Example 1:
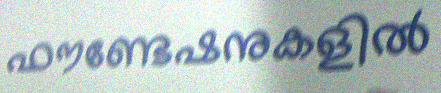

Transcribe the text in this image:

ഫൗണ്ടേഷനുകളിൽ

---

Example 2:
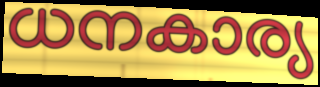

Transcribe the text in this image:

ധനകാര്യ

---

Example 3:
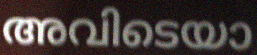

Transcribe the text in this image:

അവിടെയാ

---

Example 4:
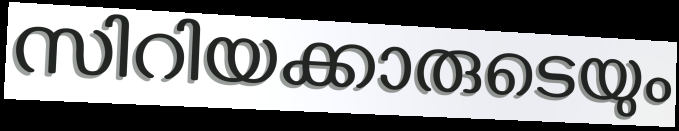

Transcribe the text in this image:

സിറിയക്കാരുടെയും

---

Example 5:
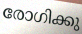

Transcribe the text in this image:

രോഗിക്കു